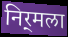
निर्मला